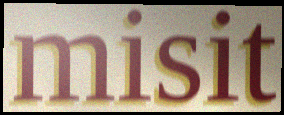
misit